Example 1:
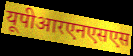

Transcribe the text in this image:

यूपीआरएनएसएस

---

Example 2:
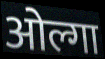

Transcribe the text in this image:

ओल्गा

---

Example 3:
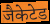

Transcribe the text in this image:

जैकेटेड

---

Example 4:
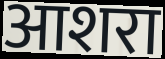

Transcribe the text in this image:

आशरा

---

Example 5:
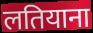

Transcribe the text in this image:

लतियाना